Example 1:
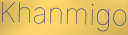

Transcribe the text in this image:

Khanmigo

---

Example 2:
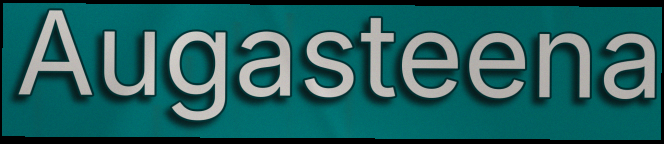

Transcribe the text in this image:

Augasteena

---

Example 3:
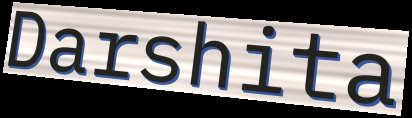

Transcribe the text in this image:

Darshita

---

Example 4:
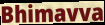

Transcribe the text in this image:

Bhimavva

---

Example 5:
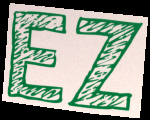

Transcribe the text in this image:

EZ